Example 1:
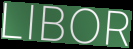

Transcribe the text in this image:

LIBOR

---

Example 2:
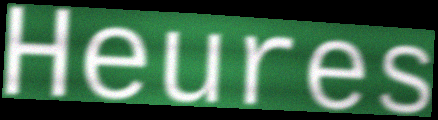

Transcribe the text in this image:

Heures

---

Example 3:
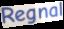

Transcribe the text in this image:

Regnal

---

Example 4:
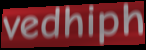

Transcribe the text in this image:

vedhiph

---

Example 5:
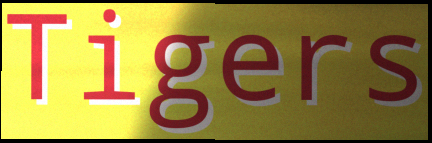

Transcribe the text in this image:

Tigers